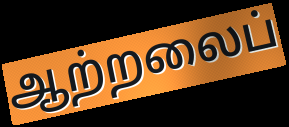
ஆற்றலைப்